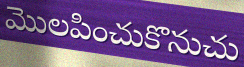
మొలపించుకొనుచు